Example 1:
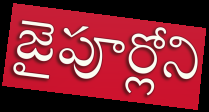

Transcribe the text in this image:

జైపూర్లోని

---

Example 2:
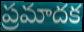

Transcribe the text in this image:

ప్రమాదక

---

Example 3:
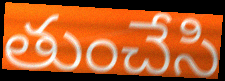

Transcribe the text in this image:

తుంచేసి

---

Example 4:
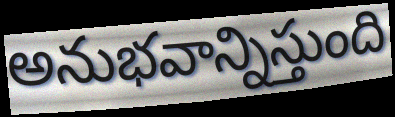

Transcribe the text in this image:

అనుభవాన్నిస్తుంది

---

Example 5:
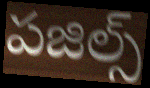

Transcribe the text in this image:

పజిల్స్